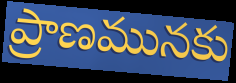
ప్రాణమునకు